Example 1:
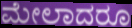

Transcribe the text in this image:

ಮೇಲಾದರೂ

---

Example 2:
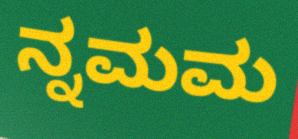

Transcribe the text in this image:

ನ್ನಮಮ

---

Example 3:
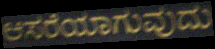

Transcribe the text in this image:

ಆಸರೆಯಾಗುವುದು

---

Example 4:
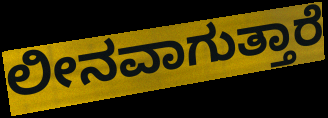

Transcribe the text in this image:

ಲೀನವಾಗುತ್ತಾರೆ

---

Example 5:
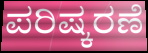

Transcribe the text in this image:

ಪರಿಷ್ಕರಣೆ